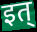
इत्